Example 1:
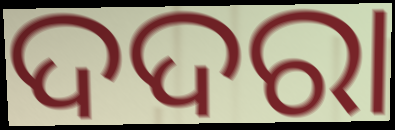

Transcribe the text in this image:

ଦଦରା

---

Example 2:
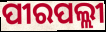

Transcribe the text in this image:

ପୀରପଲ୍ଲୀ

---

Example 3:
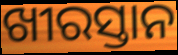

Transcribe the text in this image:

ଖୀରସ୍ତାନ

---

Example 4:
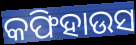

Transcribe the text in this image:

କଫିହାଉସ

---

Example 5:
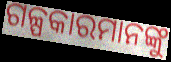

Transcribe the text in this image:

ଗଳ୍ପକାରମାନଙ୍କୁ